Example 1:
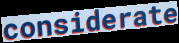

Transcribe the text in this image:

considerate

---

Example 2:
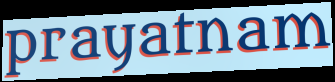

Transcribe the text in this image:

prayatnam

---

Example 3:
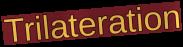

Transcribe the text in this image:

Trilateration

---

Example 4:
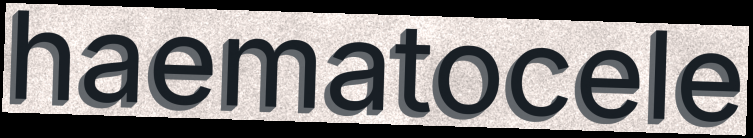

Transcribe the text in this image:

haematocele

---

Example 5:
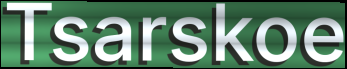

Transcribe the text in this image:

Tsarskoe